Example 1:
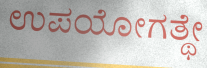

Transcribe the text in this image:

ಉಪಯೋಗತ್ಥೇ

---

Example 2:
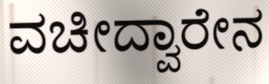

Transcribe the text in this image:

ವಚೀದ್ವಾರೇನ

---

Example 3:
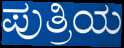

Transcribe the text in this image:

ಪುತ್ರಿಯ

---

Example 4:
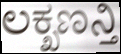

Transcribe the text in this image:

ಲಕ್ಖಣನ್ತಿ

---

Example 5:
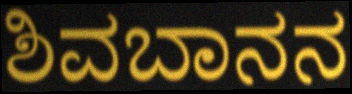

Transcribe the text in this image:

ಶಿವಬಾನನ